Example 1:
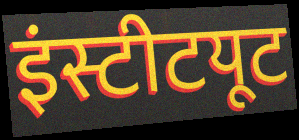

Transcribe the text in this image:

इंस्‍टीटयूट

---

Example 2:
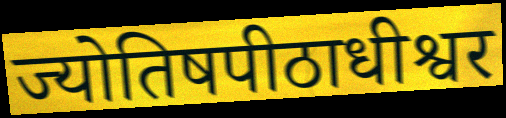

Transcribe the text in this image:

ज्योतिषपीठाधीश्वर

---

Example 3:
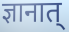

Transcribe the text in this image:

ज्ञानात्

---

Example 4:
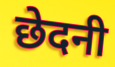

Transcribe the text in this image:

छेदनी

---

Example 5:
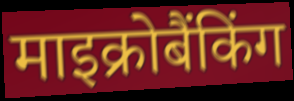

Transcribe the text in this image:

माइक्रोबैंकिंग